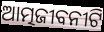
ଆତ୍ମଜୀବନୀଟି